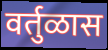
वर्तुळास